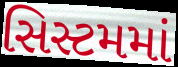
સિસ્ટમમાં